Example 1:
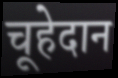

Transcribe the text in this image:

चूहेदान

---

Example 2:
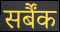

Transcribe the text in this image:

सर्बैंक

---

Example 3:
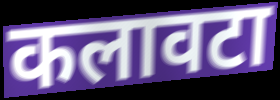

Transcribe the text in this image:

कलावटा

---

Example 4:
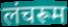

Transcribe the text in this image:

लंचरूम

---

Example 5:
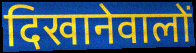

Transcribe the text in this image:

दिखानेवालों